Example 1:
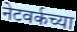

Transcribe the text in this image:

नेटवर्कच्या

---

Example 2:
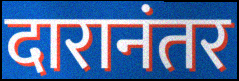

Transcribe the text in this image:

दारानंतर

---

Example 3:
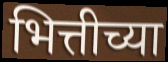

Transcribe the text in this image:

भित्तीच्या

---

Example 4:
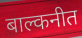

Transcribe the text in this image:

बाल्कनीत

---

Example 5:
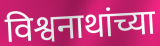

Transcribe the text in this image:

विश्वनाथांच्या